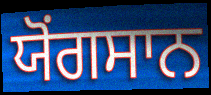
ਯੋਂਗਸਾਨ